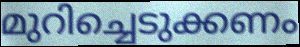
മുറിച്ചെടുക്കണം